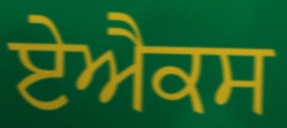
ਏਐਕਸ